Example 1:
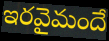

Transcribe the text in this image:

ఇరవైమందే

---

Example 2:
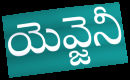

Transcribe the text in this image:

యెవ్జెనీ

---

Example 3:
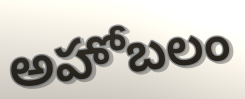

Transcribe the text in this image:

అహోబలం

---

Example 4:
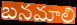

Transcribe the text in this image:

బనమాలి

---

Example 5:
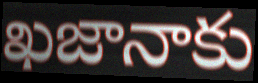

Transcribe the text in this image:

ఖజానాకు